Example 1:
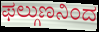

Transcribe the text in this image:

ಫಲ್ಗುಣನಿಂದ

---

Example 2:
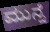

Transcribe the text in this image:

ಮುನ್ನೆ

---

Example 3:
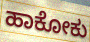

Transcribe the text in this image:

ಹಾಕೋಕು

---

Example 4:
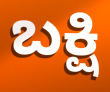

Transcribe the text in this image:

ಬಕ್ಷಿ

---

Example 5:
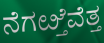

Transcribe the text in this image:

ನೆಗೞ್ತೆವೆತ್ತ